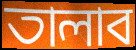
তালাব